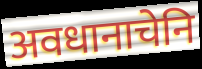
अवधानाचेनि